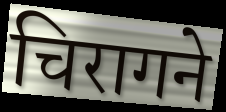
चिरागने